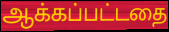
ஆக்கப்பட்டதை